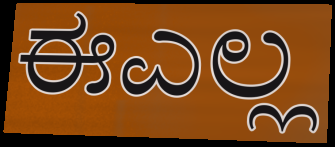
ಈಎಲ್ಲ